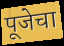
पूजेचा